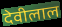
देवीलाल